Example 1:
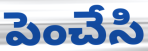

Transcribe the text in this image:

పెంచేసి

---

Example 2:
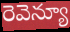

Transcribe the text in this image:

రెవెన్యూ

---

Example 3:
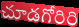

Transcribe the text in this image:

చూడగోరిరి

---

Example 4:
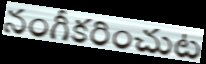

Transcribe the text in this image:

నంగీకరించుట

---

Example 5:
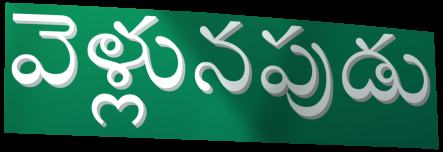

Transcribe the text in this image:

వెళ్లునపుడు